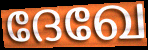
ദേഖേ